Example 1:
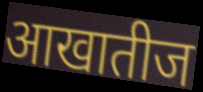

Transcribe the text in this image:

आखातीज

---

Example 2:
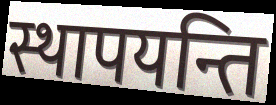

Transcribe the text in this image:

स्थापयन्ति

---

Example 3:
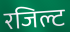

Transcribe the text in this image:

रजिल्ट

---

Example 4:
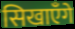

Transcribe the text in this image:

सिखाएँगे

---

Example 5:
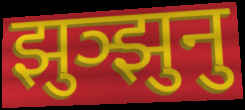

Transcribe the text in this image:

झुञ्झुनु